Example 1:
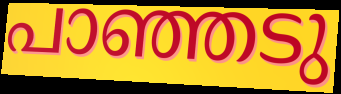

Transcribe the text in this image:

പാഞ്ഞടു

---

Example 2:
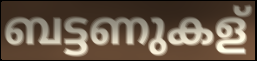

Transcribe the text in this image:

ബട്ടണുകള്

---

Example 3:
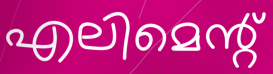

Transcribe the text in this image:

എലിമെന്റ്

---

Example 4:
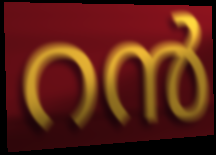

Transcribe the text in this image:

റൻ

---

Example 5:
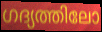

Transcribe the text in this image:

ഗദ്യത്തിലോ